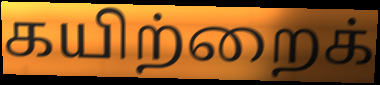
கயிற்றைக்